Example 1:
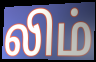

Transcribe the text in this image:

லிம்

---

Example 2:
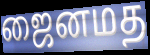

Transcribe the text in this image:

ஜைனமத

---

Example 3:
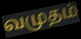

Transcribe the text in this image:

வமுதம்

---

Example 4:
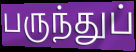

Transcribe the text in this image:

பருந்துப்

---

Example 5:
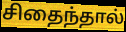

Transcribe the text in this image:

சிதைந்தால்